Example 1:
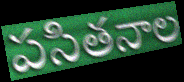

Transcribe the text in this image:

పసితనాల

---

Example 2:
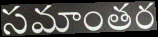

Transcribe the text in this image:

సమాంతర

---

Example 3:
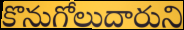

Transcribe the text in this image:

కొనుగోలుదారుని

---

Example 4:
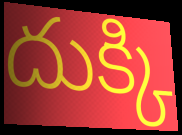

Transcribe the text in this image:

దుక్కి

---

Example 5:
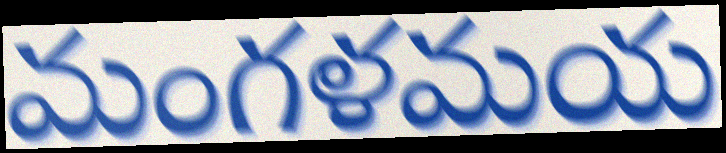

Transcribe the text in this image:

మంగళమయ